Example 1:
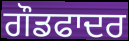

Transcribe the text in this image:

ਗੌਡਫਾਦਰ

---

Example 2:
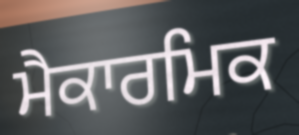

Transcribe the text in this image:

ਮੈਕਾਰਮਿਕ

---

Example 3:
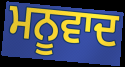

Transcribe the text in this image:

ਮਨੂਵਾਦ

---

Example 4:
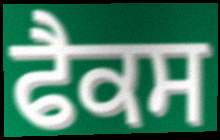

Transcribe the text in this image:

ਫੈਕਸ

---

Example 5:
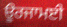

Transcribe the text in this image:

ਊਰਜਾਮਈ